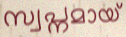
സ്വപ്നമായ്